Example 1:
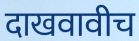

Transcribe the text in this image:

दाखवावीच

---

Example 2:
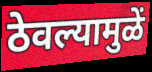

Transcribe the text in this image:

ठेवल्यामुळें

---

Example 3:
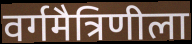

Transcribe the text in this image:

वर्गमैत्रिणीला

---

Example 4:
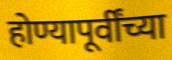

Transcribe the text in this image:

होण्यापूर्वींच्या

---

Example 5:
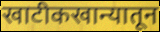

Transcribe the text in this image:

खाटीकखान्यातून